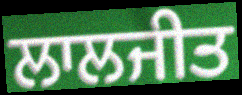
ਲਾਲਜੀਤ